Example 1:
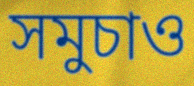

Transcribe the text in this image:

সমুচাও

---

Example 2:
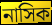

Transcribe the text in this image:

নাসিক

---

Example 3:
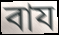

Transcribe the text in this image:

বায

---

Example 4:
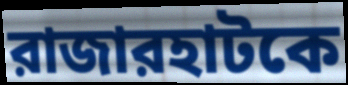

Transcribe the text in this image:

রাজারহাটকে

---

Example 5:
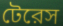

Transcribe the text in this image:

টেরেস